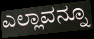
ಎಲ್ಲಾವನ್ನೂ